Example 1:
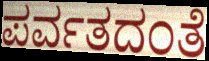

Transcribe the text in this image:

ಪರ್ವತದಂತೆ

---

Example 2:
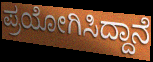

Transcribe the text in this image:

ಪ್ರಯೋಗಿಸಿದ್ದಾನೆ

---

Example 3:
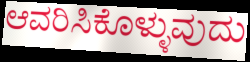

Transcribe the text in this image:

ಆವರಿಸಿಕೊಳ್ಳುವುದು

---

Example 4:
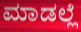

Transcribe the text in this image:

ಮಾಡಲ್ಲೆ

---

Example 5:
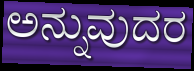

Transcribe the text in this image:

ಅನ್ನುವುದರ